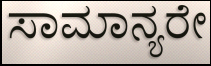
ಸಾಮಾನ್ಯರೇ